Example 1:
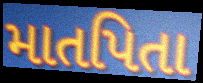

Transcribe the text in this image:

માતપિતા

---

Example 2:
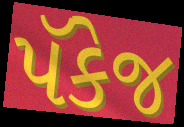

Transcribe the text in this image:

પૅકેજ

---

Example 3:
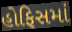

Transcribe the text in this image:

હોફિસમાં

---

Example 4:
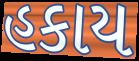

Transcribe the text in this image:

હકાય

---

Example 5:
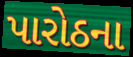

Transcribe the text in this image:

પારોઠના